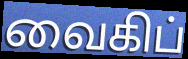
வைகிப்